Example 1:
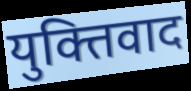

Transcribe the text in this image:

युक्तिवाद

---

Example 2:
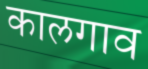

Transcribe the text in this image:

कालगाव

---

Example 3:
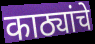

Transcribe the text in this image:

काठ्यांचे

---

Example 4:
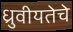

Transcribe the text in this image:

ध्रुवीयतेचे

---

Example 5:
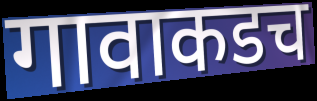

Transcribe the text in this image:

गावाकडच